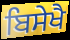
ਬਿਸੇਖੈ